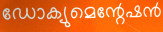
ഡോക്യുമെന്റേഷൻ